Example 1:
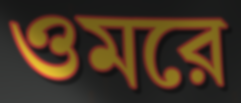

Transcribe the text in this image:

ওমরে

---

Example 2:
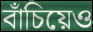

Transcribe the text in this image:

বাঁচিয়েও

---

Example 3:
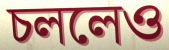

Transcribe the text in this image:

চললেও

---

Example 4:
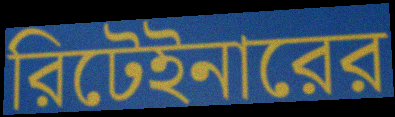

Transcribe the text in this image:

রিটেইনারের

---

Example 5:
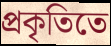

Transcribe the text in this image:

প্রকৃতিতে